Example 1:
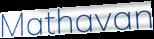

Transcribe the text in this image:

Mathavan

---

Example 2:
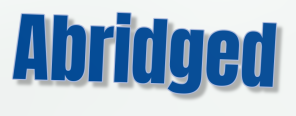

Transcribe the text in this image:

Abridged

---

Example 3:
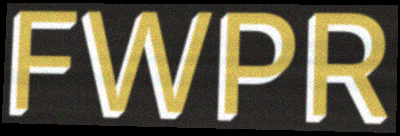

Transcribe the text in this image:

FWPR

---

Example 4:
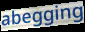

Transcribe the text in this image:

abegging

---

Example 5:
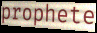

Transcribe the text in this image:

prophete